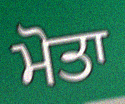
ਮੋਤਾ